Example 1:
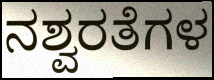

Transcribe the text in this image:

ನಶ್ವರತೆಗಳ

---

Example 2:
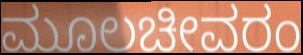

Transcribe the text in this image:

ಮೂಲಚೀವರಂ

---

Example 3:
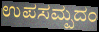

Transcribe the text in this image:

ಉಪಸಮ್ಪದಂ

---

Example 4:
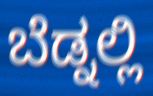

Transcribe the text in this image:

ಬೆಡ್ನಲ್ಲಿ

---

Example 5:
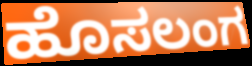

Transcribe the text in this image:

ಹೊಸಲಂಗ